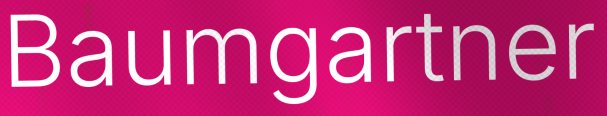
Baumgartner